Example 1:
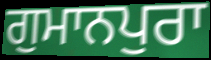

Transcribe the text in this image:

ਗੁਮਾਨਪੁਰਾ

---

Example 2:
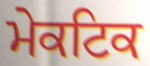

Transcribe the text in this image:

ਮੇਕਟਿਕ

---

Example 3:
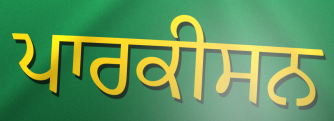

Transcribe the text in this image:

ਪਾਰਕੀਸਨ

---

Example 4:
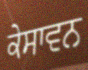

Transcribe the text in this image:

ਕੇਸਾਵਨ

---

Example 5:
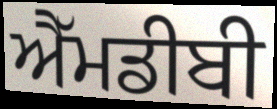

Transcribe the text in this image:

ਐੱਮਡੀਬੀ